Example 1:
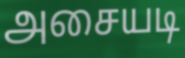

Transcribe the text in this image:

அசையடி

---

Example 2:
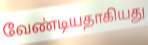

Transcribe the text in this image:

வேண்டியதாகியது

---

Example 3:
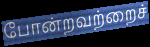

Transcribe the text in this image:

போன்றவற்றைச்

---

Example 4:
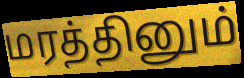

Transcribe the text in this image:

மரத்தினும்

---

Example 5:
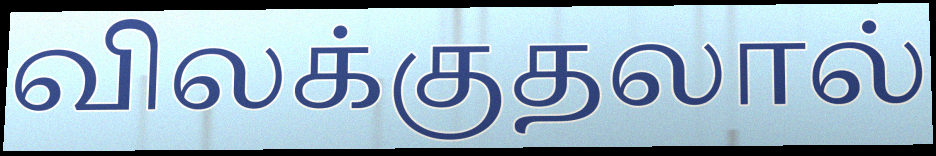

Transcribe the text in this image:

விலக்குதலால்